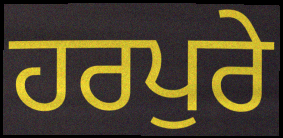
ਹਰਪੁਰੇ